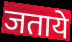
जताये